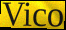
Vico